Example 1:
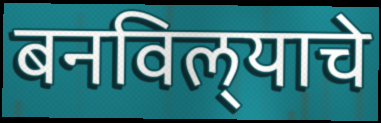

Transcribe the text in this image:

बनविल्याचे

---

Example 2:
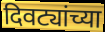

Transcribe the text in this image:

दिवट्यांच्या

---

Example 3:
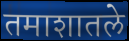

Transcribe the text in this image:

तमाशातले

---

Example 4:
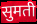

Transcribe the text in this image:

सुमती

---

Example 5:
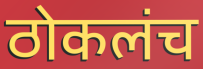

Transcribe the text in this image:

ठोकलंच